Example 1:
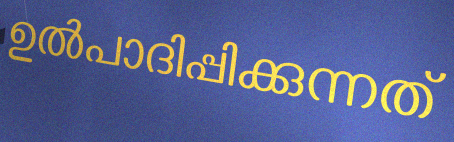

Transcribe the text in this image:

ഉൽപാദിപ്പിക്കുന്നത്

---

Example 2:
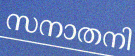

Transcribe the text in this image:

സനാതനി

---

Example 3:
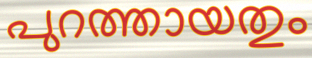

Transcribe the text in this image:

പുറത്തായതും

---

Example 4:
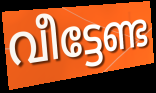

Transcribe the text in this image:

വീട്ടേണ്ട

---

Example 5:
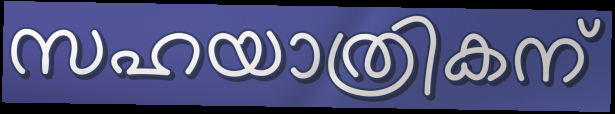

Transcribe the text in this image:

സഹയാത്രികന്